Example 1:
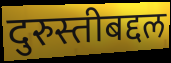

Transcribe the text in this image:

दुरुस्तीबद्दल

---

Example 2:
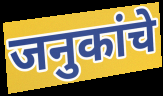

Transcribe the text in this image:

जनुकांचे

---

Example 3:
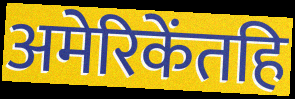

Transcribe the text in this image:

अमेरिकेंतहि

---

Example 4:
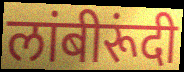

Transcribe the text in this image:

लांबीरूंदी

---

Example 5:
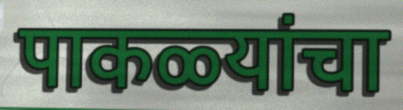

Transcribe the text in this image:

पाकळ्यांचा